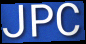
JPC